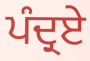
ਪੰਦ੍ਰਏ